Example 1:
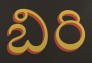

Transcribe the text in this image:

బిరి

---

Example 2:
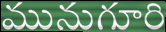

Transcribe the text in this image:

మునుగూరి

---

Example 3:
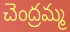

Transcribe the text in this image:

చెంద్రమ్మ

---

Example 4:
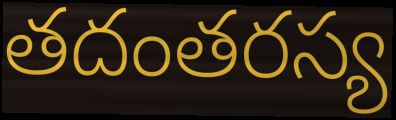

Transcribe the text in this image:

తదంతరస్య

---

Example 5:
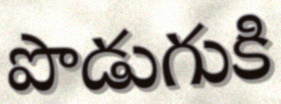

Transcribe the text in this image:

పొడుగుకి